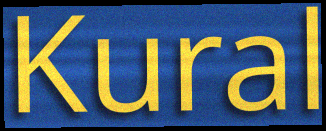
Kural